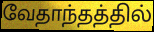
வேதாந்தத்தில்